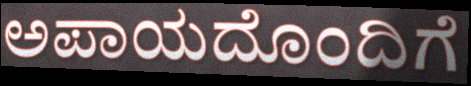
ಅಪಾಯದೊಂದಿಗೆ